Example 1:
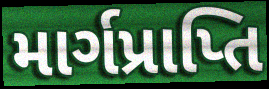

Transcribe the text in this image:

માર્ગપ્રાપ્તિ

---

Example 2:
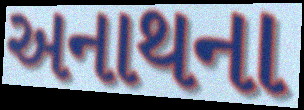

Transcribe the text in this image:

અનાથના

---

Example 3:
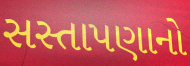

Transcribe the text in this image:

સસ્તાપણાનો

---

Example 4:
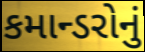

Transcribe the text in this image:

કમાન્ડરોનું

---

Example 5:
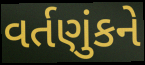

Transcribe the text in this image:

વર્તણુંકને